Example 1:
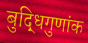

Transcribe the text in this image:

बुद्धिगुणांक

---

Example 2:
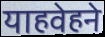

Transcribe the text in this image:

याहवेहने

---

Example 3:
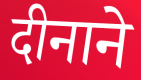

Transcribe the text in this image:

दीनाने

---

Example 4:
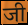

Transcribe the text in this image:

जी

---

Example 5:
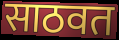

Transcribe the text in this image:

साठवत